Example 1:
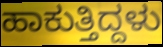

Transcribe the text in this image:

ಹಾಕುತ್ತಿದ್ದಳು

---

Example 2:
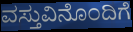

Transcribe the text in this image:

ವಸ್ತುವಿನೊಂದಿಗೆ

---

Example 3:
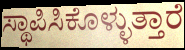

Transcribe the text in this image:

ಸ್ಥಾಪಿಸಿಕೊಳ್ಳುತ್ತಾರೆ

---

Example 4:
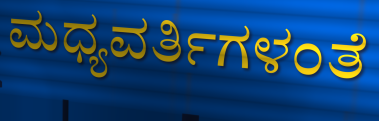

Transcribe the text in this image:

ಮಧ್ಯವರ್ತಿಗಳಂತೆ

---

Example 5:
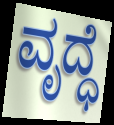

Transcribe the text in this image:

ವೃದ್ಧೆ